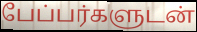
பேப்பர்களுடன்